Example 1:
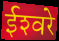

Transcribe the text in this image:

ईश्वरे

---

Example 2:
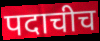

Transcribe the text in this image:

पदाचीच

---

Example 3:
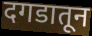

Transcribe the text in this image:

दगडातून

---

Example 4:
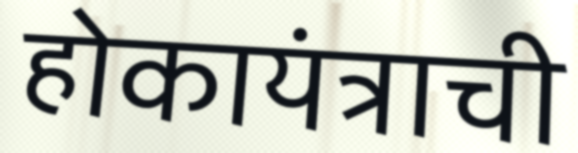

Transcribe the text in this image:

होकायंत्राची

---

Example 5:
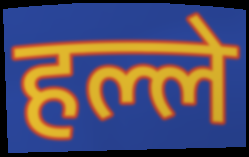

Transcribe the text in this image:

हल्ले